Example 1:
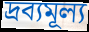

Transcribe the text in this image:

দ্রব্যমূল্য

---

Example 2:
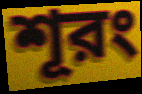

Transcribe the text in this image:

শূরং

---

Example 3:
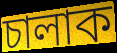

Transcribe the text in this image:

চালাক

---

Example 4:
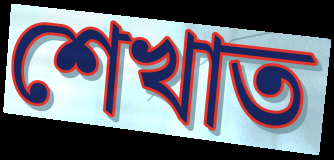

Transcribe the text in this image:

শেখাত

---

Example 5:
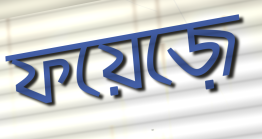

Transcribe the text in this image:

ফয়েজ়ে